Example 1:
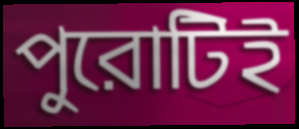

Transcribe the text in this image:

পুরোটিই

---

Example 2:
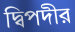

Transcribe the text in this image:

দ্বিপদীর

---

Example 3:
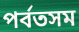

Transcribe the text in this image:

পর্বতসম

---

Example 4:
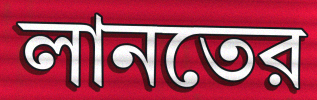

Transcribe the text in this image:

লানতের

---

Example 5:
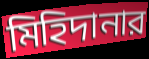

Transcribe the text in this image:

মিহিদানার